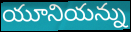
యూనియన్ను